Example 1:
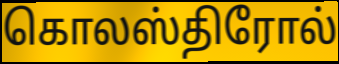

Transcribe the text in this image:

கொலஸ்திரோல்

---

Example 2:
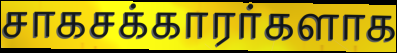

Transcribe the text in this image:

சாகசக்காரர்களாக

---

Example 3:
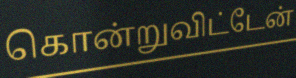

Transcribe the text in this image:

கொன்றுவிட்டேன்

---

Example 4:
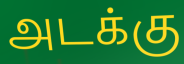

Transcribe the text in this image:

அடக்கு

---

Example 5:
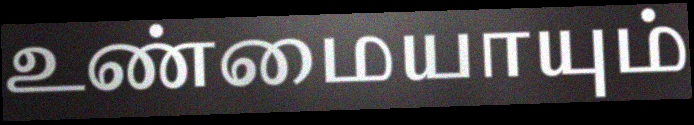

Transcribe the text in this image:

உண்மையாயும்